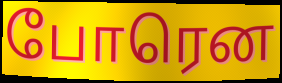
போரென